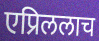
एप्रिललाच